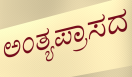
ಅಂತ್ಯಪ್ರಾಸದ